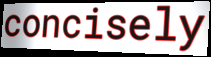
concisely